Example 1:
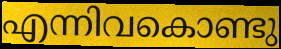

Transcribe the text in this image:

എന്നിവകൊണ്ടു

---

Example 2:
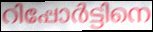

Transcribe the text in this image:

റിപ്പോർട്ടിനെ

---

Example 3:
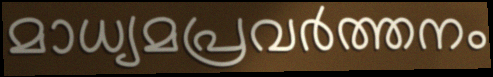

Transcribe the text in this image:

മാധ്യമപ്രവർത്തനം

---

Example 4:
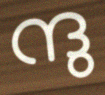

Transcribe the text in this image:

ന്ദു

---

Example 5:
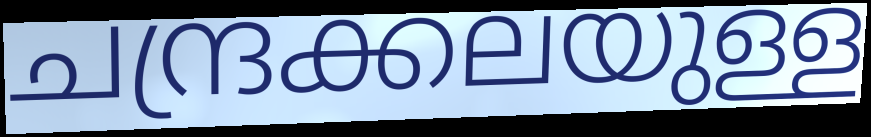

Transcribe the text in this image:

ചന്ദ്രക്കലയുള്ള